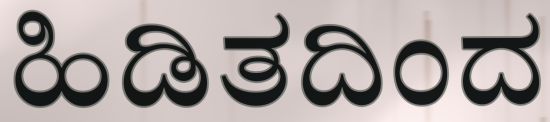
ಹಿಡಿತದಿಂದ